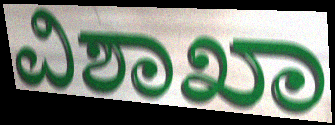
ವಿಶಾಖಾ